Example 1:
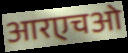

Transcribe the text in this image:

आरएचओ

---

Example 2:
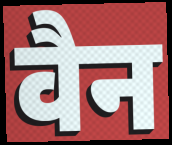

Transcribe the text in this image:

वैन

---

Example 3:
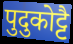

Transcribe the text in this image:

पुदुकोट्टै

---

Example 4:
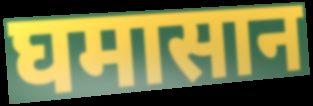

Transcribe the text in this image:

घमासान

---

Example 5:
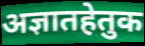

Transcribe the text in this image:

अज्ञातहेतुक